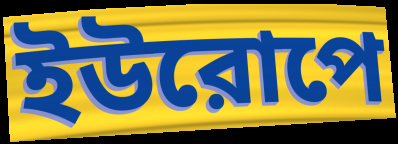
ইউরোপে